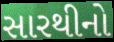
સારથીનો